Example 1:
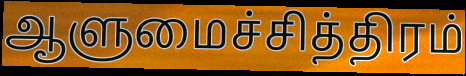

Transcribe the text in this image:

ஆளுமைச்சித்திரம்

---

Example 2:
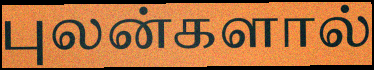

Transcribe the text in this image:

புலன்களால்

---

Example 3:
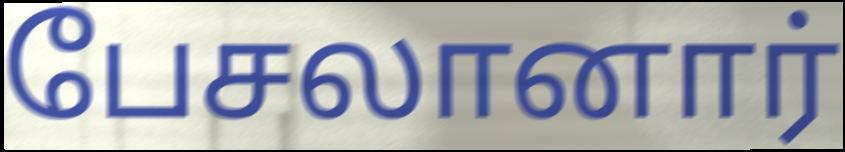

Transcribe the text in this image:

பேசலானார்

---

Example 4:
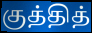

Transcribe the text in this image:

குத்தித்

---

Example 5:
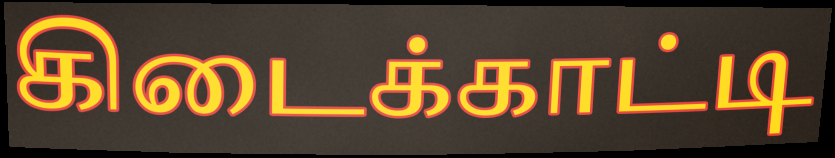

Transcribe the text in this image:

கிடைக்காட்டி